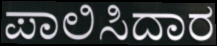
ಪಾಲಿಸಿದಾರ